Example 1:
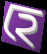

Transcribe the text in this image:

হে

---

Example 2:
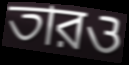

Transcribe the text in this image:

তারও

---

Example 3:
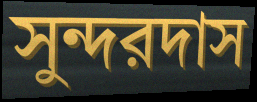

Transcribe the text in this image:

সুন্দরদাস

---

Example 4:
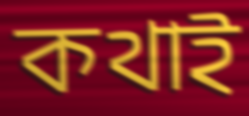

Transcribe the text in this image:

কথাই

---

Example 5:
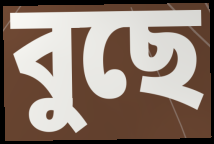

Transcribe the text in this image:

বুছে